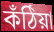
কঁঠিয়া